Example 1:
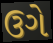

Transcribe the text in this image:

ઉગે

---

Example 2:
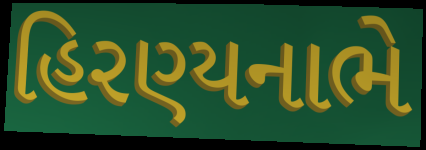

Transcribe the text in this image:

હિરણ્યનાભે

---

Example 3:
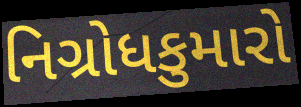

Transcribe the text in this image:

નિગ્રોધકુમારો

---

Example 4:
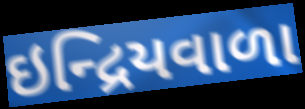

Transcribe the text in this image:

ઇન્દ્રિયવાળા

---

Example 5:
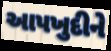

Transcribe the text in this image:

આપખુદીને